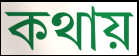
কথায়